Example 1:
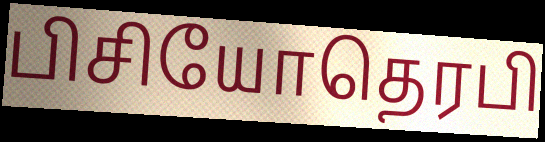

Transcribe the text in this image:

பிசியோதெரபி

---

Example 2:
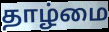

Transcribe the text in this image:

தாழ்மை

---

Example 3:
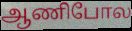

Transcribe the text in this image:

ஆணிபோல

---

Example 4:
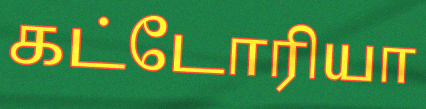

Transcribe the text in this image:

கட்டோரியா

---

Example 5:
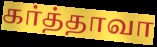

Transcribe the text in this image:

கர்த்தாவா